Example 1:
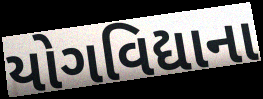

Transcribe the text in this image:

યોગવિદ્યાના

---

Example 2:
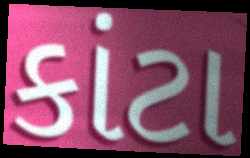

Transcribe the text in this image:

કાંટા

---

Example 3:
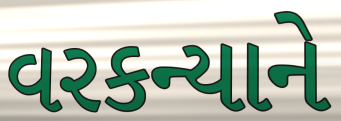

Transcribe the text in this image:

વરકન્યાને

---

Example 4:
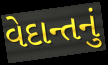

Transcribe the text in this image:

વેદાન્તનું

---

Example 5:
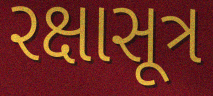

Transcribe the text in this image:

રક્ષાસૂત્ર